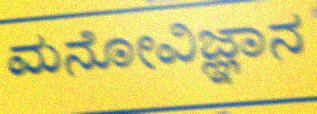
ಮನೋವಿಜ್ಞಾನ